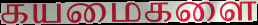
கயமைகளை